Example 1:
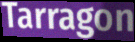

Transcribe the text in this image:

Tarragon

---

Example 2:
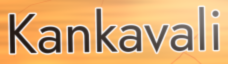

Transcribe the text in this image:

Kankavali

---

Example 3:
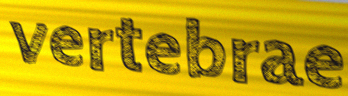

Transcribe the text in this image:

vertebrae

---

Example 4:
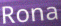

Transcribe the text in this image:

Rona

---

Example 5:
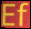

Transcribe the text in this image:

Ef